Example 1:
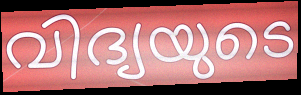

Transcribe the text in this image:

വിദ്യയുടെ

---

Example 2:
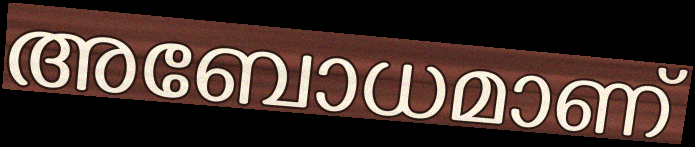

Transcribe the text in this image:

അബോധമാണ്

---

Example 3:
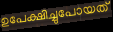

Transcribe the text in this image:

ഉപേക്ഷിച്ചുപോയത്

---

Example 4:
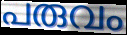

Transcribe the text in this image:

പരുവം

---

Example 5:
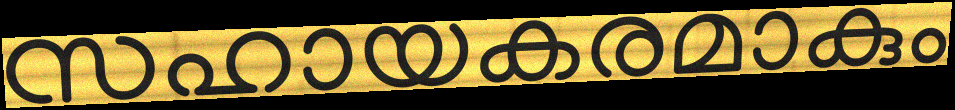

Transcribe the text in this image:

സഹായകരമാകും